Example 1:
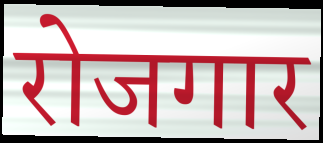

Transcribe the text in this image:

रोजगार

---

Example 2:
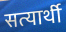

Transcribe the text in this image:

सत्यार्थी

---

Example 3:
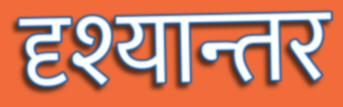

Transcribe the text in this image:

दृश्यान्तर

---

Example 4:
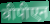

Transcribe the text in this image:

वीपीएन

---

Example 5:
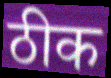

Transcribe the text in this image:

ठीक